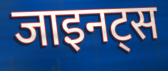
जाइनट्स